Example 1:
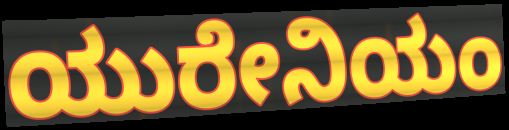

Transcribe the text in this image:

ಯುರೇನಿಯಂ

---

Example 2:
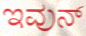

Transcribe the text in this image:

ಇವುನ್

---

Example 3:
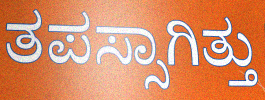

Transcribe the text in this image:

ತಪಸ್ಸಾಗಿತ್ತು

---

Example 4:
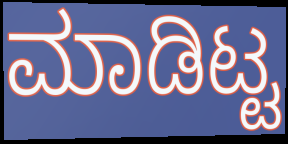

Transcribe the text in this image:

ಮಾಡಿಟ್ಟ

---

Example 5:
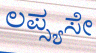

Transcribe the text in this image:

ಲಪ್ಸ್ಯಸೇ